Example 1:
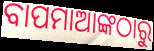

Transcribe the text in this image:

ବାପମାଆଙ୍କଠାରୁ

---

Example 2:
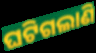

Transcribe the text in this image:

ଘଟିଗଲାଣି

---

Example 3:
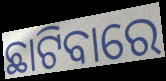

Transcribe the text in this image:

ଛାଟିବାରେ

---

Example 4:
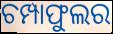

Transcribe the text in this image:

ଚମ୍ପାଫୁଲର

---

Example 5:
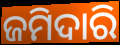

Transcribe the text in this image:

ଜମିଦାରି